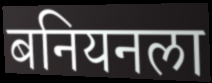
बनियनला